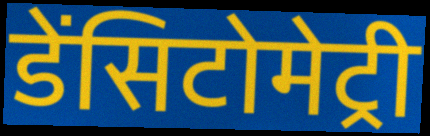
डेंसिटोमेट्री